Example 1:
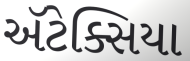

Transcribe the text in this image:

ઍટેક્સિયા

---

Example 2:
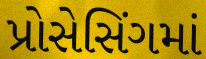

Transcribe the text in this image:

પ્રોસેસિંગમાં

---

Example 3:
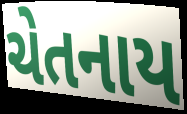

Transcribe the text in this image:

ચેતનાય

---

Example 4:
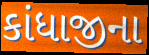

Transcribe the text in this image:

કાંધાજીના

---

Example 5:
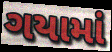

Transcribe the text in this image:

ગયામાં